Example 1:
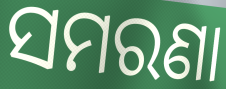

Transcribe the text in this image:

ସମରଣା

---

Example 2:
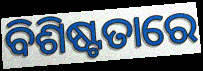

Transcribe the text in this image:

ବିଶିଷ୍ଟତାରେ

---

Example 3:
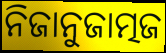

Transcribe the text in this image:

ନିଜାନୁଜାତ୍ମଜ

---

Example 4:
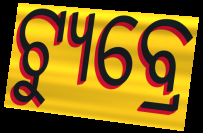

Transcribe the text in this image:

ଟ୍ୟୁବ୍ରେ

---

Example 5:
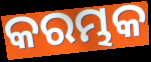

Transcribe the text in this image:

କରମ୍ଭକ